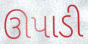
ઊપાડી